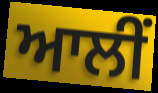
ਆਲੀਂ